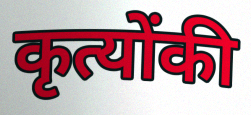
कृत्योंकी